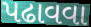
પઢાવવા